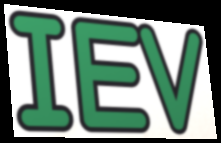
IEV